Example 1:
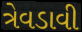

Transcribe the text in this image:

ત્રેવડાવી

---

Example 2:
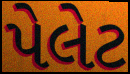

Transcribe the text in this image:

પેલેટ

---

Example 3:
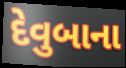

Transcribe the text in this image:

દેવુબાના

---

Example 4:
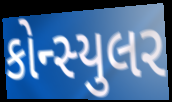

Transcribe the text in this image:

કોન્સ્યુલર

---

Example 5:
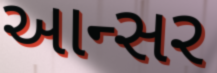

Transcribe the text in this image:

આન્સર